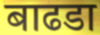
बाढडा